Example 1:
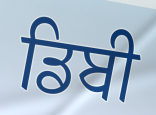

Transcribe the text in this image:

ਡਿਬੀ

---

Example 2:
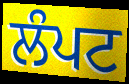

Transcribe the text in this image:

ਲੰਪਟ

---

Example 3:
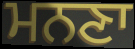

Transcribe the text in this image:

ਮਨਣਾ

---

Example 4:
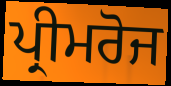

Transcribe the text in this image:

ਪ੍ਰੀਮਰੋਜ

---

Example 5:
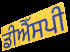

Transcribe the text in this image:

ਡੀਐੱਸਪੀ